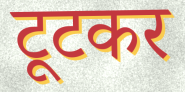
टूटकर